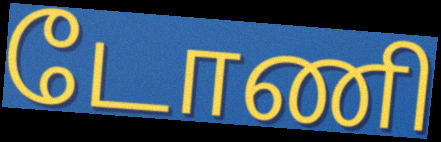
டோணி